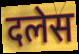
दलेस